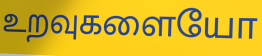
உறவுகளையோ